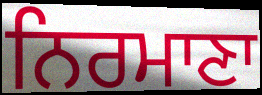
ਨਿਰਮਾਣਾ